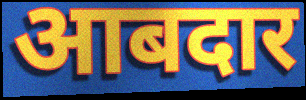
आबदार